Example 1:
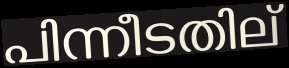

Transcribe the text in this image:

പിന്നീടതില്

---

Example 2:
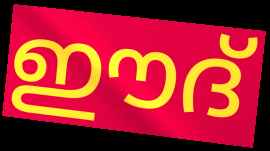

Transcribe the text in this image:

ഈദ്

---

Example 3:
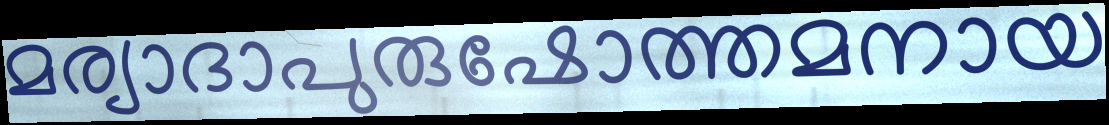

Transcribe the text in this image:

മര്യാദാപുരുഷോത്തമനായ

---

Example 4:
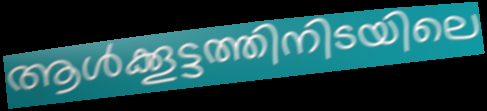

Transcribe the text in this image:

ആൾക്കൂട്ടത്തിനിടയിലെ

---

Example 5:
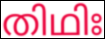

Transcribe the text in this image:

തിഥിഃ